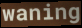
waning